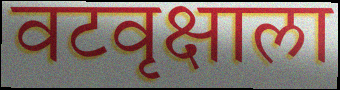
वटवृक्षाला